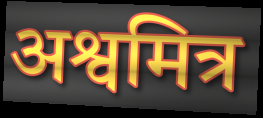
अश्वमित्र